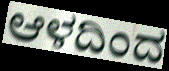
ಆಳದಿಂದ